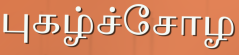
புகழ்ச்சோழ